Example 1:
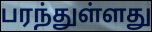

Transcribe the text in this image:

பரந்துள்ளது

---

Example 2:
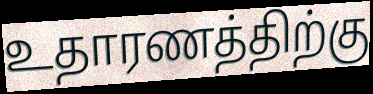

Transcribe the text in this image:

உதாரணத்திற்கு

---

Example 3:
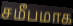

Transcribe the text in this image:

சமீபமாக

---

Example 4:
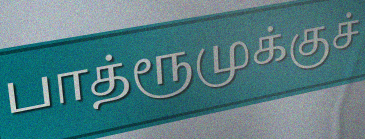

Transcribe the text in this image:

பாத்ரூமுக்குச்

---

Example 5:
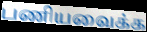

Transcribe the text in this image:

பணியவைக்க